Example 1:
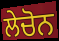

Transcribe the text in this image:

ਲੇਚੋਨ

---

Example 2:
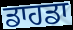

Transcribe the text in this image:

ਡਾਹਡਾ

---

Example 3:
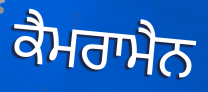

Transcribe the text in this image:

ਕੈਮਰਾਮੈਨ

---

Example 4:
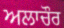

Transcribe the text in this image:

ਅਲਾਚੌਰ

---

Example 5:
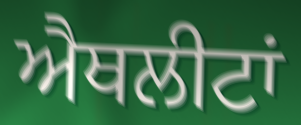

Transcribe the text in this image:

ਐਥਲੀਟਾਂ